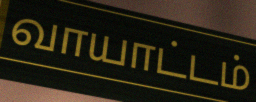
வாயாட்டம்